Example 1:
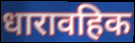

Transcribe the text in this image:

धारावहिक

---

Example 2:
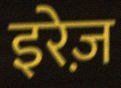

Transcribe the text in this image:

इरेज़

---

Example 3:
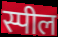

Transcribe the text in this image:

स्पील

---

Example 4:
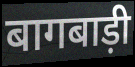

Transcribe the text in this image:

बागबाड़ी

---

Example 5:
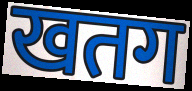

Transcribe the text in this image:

खतग